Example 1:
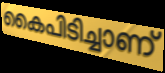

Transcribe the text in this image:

കൈപിടിച്ചാണ്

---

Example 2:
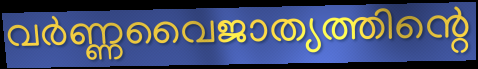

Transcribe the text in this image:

വർണ്ണവൈജാത്യത്തിന്റെ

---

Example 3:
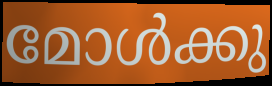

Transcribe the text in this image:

മോൾക്കു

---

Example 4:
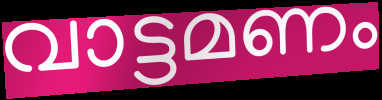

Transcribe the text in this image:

വാട്ടമണം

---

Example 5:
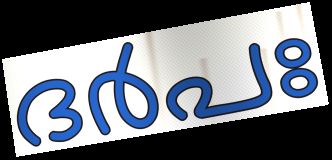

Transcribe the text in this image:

ദർപഃ